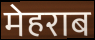
मेहराब